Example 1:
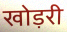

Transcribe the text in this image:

खोड़री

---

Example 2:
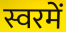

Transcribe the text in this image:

स्वरमें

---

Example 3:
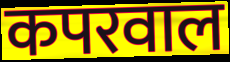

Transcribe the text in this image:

कपरवाल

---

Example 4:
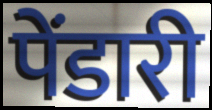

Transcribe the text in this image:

पेंडारी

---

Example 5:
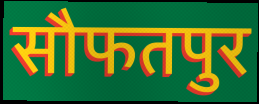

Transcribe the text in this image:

सौफतपुर